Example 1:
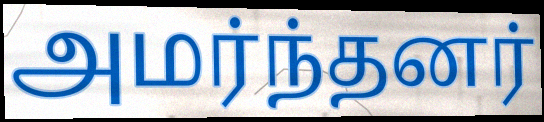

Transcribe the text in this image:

அமர்ந்தனர்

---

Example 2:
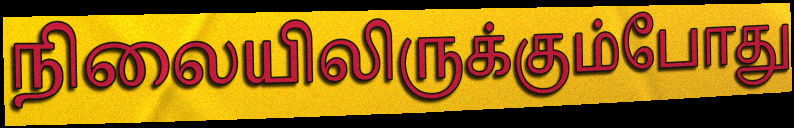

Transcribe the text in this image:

நிலையிலிருக்கும்போது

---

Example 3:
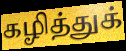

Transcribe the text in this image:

கழித்துக்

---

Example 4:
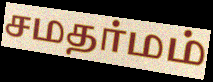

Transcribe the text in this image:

சமதர்மம்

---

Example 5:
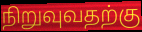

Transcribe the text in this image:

நிறுவுவதற்கு